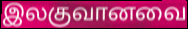
இலகுவானவை